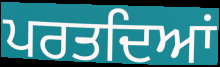
ਪਰਤਦਿਆਂ